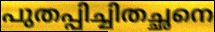
പുതപ്പിച്ചിതച്ഛനെ